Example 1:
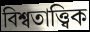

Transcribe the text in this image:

বিশ্বতাত্ত্বিক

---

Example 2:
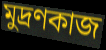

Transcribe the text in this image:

মুদ্রণকাজ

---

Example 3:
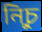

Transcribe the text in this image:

নিচু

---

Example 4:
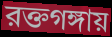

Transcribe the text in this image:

রক্তগঙ্গায়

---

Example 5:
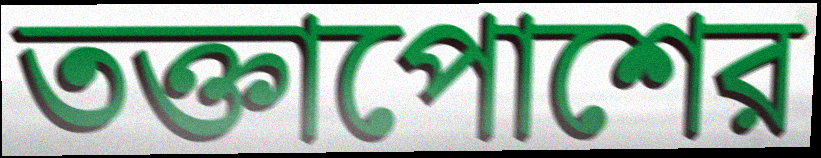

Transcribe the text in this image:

তক্তাপোশের